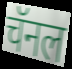
चॅनल